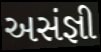
અસંજ્ઞી